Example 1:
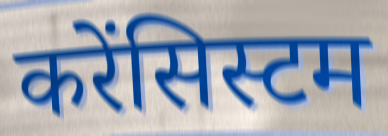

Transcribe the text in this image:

करेंसिस्टम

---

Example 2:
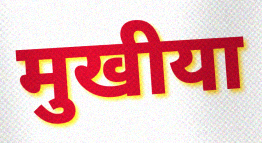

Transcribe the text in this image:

मुखीया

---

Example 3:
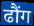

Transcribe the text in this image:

ढौंग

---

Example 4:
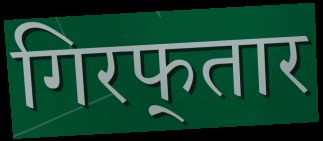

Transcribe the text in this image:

गिरफ्‌तार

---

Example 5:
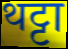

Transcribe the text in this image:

थट्टा